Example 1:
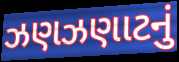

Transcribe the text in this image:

ઝણઝણાટનું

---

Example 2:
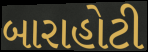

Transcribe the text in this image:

બારાહોટી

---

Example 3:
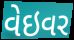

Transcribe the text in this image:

વેઇવર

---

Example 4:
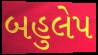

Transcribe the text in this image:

બહુલેપ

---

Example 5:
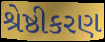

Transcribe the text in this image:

શ્રેષ્ઠીકરણ